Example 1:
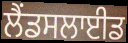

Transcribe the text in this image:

ਲੈਂਡਸਲਾਈਡ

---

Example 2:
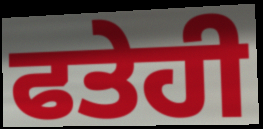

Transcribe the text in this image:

ਫਤੇਹੀ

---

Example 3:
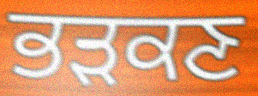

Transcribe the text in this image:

ਭੜਕਣ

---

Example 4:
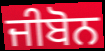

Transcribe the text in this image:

ਜੀਬੋਨ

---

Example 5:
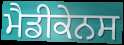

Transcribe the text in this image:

ਮੈਡੀਕੇਨਸ